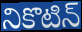
నికొటిన్